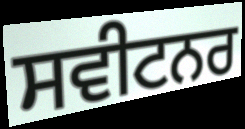
ਸਵੀਟਨਰ